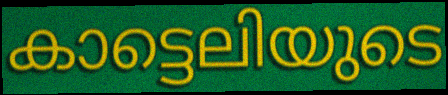
കാട്ടെലിയുടെ